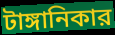
টাঙ্গানিকার